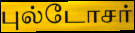
புல்டோசர்